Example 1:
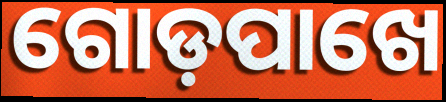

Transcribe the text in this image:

ଗୋଡ଼ପାଖେ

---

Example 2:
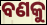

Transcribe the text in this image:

ବଣକୁ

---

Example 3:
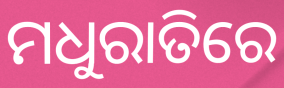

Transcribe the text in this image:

ମଧୁରାତିରେ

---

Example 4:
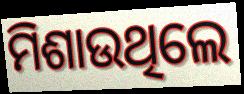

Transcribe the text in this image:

ମିଶାଉଥିଲେ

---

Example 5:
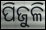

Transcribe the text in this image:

ପିଜୁଳି